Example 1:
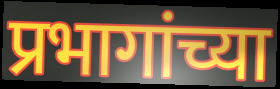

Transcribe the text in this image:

प्रभागांच्या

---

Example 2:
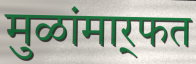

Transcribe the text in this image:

मुळांमार्फत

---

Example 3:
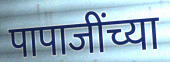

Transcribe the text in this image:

पापाजींच्या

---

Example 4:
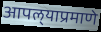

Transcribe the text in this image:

आपल्याप्रमाणे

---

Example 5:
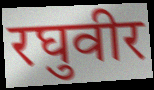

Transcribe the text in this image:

रघुवीर